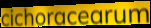
cichoracearum